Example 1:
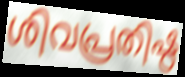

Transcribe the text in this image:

ശിവപ്രതിഷ്ഠ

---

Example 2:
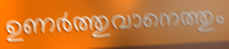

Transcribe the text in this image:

ഉണർത്തുവാനെത്തും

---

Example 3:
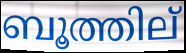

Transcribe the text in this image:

ബൂത്തില്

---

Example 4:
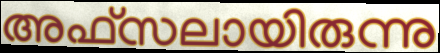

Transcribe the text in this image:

അഫ്സലായിരുന്നു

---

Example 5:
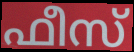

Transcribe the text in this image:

ഫീസ്